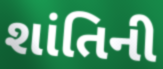
શાંતિની